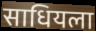
साधियला